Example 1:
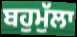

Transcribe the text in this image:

ਬਹੁਮੁੱਲਾ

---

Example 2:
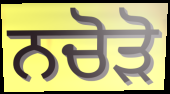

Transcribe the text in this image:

ਨਚੋੜੋ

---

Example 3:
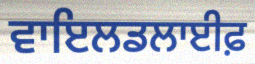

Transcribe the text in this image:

ਵਾਇਲਡਲਾਈਫ਼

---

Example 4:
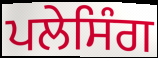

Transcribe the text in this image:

ਪਲੇਸਿੰਗ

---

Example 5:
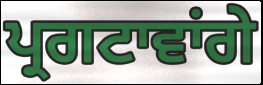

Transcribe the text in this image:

ਪ੍ਰਗਟਾਵਾਂਗੇ